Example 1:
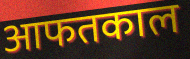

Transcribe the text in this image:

आफतकाल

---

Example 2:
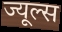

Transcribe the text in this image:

ज्यूल्स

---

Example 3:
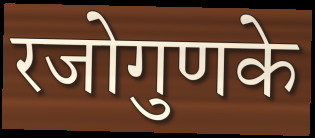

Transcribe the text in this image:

रजोगुणके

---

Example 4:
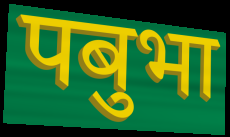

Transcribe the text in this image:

पबुभा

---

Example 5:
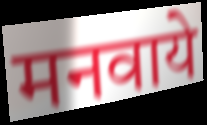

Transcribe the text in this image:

मनवाये